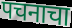
पचनाचा